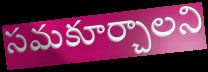
సమకూర్చాలని